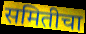
समितीचा